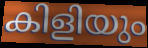
കിളിയും